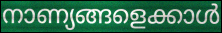
നാണ്യങ്ങളെക്കാൾ